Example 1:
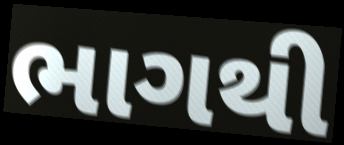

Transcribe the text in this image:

ભાગથી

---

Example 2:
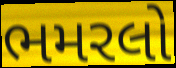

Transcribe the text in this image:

ભમરલો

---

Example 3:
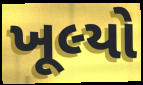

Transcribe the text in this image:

ખૂલ્યો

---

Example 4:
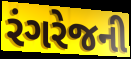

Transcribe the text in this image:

રંગરેજની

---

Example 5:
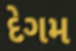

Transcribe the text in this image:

દેગમ